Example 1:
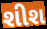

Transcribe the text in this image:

શીશ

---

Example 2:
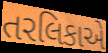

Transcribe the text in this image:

તરલિકાએ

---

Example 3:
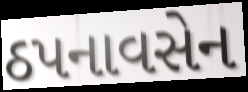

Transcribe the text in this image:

ઠપનાવસેન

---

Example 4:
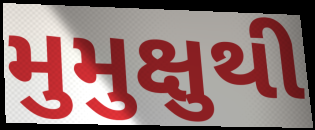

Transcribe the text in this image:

મુમુક્ષુથી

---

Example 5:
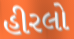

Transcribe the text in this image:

હીરલો